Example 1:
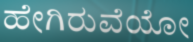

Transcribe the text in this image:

ಹೇಗಿರುವೆಯೋ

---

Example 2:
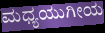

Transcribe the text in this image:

ಮಧ್ಯಯುಗೀಯ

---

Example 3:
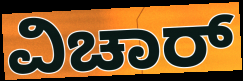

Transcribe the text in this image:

ವಿಚಾರ್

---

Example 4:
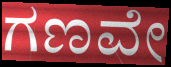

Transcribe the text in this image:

ಗಣವೇ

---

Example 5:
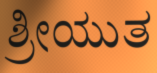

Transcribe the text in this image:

ಶ್ರೀಯುತ